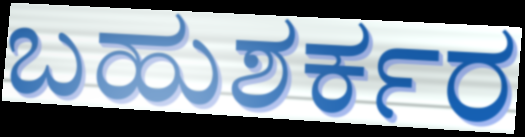
ಬಹುಶರ್ಕರ